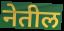
नेतील